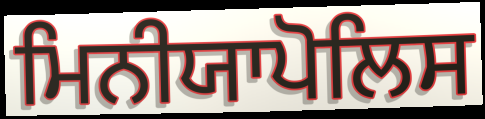
ਮਿਨੀਯਾਪੋਲਿਸ